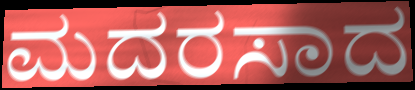
ಮದರಸಾದ